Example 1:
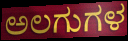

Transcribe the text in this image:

ಅಲಗುಗಳ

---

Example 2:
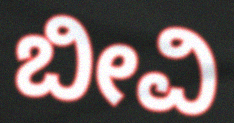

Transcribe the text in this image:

ಬೀವಿ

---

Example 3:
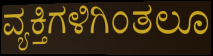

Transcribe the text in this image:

ವ್ಯಕ್ತಿಗಳಿಗಿಂತಲೂ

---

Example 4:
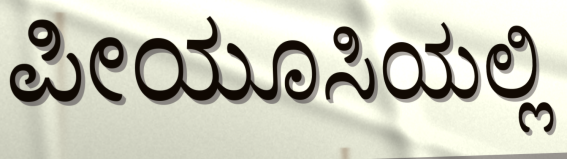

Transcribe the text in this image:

ಪೀಯೂಸಿಯಲ್ಲಿ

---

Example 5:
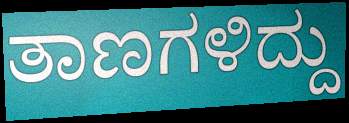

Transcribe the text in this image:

ತಾಣಗಳಿದ್ದು